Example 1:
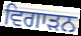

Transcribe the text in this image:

ਵਿਗਾੜਨ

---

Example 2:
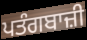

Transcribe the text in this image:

ਪਤੰਗਬਾਜ਼ੀ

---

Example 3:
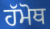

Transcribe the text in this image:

ਹੱਮੋਥ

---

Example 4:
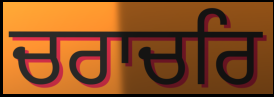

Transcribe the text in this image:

ਚਰਾਚਰਿ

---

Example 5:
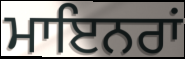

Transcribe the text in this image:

ਮਾਇਨਰਾਂ